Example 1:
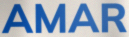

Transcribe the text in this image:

AMAR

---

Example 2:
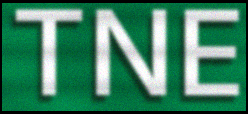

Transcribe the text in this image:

TNE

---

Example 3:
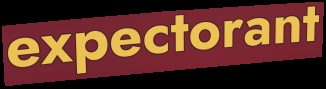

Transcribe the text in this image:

expectorant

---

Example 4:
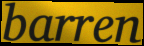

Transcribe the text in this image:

barren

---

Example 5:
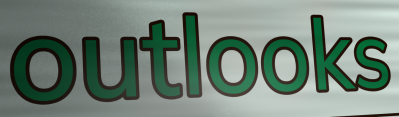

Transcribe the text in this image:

outlooks